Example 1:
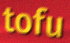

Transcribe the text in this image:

tofu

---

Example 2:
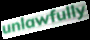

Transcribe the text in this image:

unlawfully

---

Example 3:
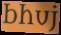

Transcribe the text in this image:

bhuj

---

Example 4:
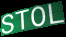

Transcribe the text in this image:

STOL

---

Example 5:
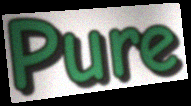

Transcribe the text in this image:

Pure